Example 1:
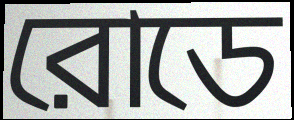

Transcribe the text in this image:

রোডে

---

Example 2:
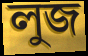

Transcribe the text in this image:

লুজ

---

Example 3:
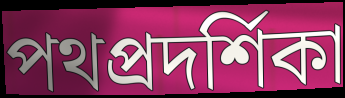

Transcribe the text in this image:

পথপ্রদর্শিকা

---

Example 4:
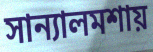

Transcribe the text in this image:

সান্যালমশায়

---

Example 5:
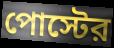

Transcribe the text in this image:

পোস্টের